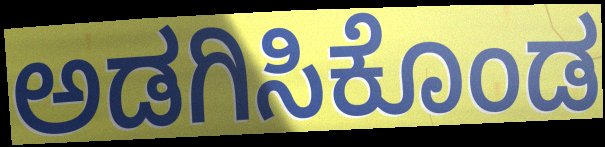
ಅಡಗಿಸಿಕೊಂಡ